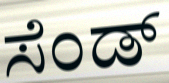
ಸೆಂಡ್